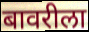
बावरीला